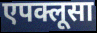
एपक्लूसा